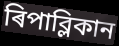
ৰিপাব্লিকান